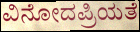
ವಿನೋದಪ್ರಿಯತೆ